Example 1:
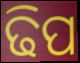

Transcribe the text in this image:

ଢିପ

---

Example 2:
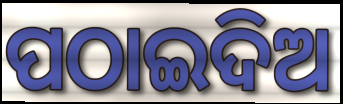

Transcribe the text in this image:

ପଠାଇଦିଅ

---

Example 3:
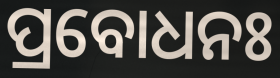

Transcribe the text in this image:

ପ୍ରବୋଧନଃ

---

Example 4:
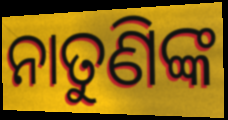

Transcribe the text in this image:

ନାତୁଣିଙ୍କ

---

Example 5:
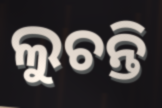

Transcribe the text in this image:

ଲୁଚନ୍ତି